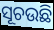
ସୂଚଉଛି